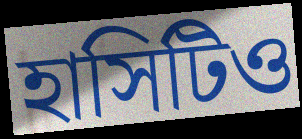
হাসিটিও